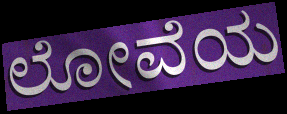
ಲೋವೆಯ